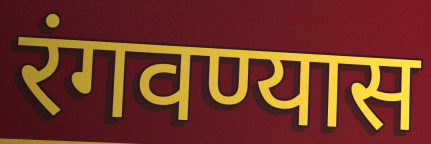
रंगवण्यास